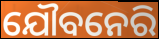
ଯୌବନେରି